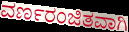
ವರ್ಣರಂಜಿತವಾಗಿ